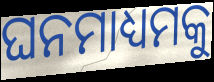
ଘନମାଧ୍ୟମକୁ